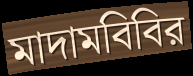
মাদামবিবির